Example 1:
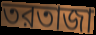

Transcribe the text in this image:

তরতাজা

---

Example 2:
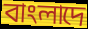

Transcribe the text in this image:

বাংলাদে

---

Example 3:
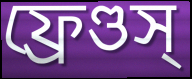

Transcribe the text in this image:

ফ্রেণ্ডস্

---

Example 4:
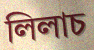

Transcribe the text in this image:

লিলাচ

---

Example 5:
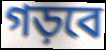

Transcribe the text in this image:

গড়বে